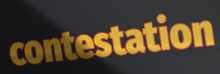
contestation